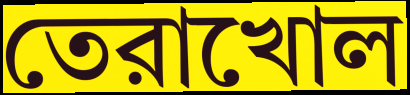
তেরাখোল